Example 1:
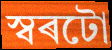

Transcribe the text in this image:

স্বৰটো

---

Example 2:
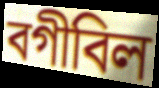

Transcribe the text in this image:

বগীবিল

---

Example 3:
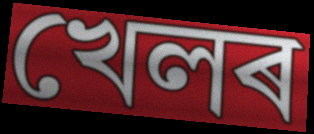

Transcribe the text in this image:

খেলৰ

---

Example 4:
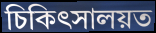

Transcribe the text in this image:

চিকিৎসালয়ত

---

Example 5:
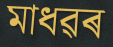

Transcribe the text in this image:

মাধৱৰ